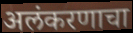
अलंकरणाचा